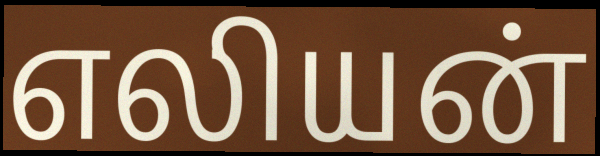
எலியன்